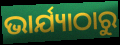
ଭାର୍ଯ୍ୟାଠାରୁ